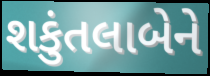
શકુંતલાબેને